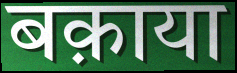
बक़ाया